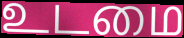
உடமை